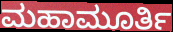
ಮಹಾಮೂರ್ತಿ